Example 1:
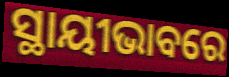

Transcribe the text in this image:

ସ୍ଥାୟୀଭାବରେ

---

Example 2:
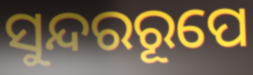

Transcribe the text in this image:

ସୁନ୍ଦରରୂପେ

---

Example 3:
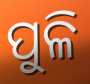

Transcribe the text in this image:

ପୁଳି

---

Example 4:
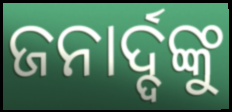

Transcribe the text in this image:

ଜନାର୍ଦ୍ଦଙ୍କୁ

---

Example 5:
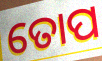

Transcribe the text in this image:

ତୋପ